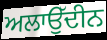
ਅਲਾਉੱਦੀਨ